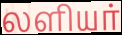
லளியர்